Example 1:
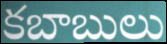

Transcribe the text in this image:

కబాబులు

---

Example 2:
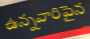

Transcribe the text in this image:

ఉన్నవారిపైన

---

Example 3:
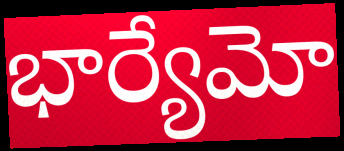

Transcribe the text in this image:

భార్యేమో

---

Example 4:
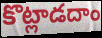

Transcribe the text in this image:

కొట్లాడదాం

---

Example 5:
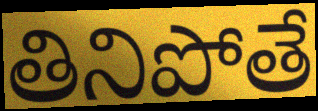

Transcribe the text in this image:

తినిపోతే